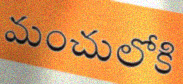
మంచులోకి